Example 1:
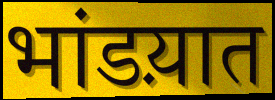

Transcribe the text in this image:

भांडय़ात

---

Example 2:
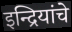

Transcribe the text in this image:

इन्द्रियांचे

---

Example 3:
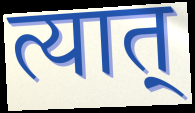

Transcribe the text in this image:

त्यात्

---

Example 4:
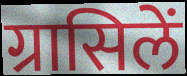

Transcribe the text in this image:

ग्रासिलें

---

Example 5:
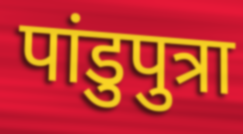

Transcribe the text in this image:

पांडुपुत्रा